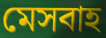
মেসবাহ